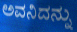
ಅವನಿದನ್ನು